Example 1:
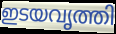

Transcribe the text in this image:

ഇടയവൃത്തി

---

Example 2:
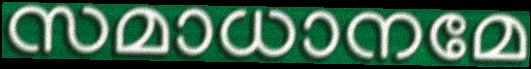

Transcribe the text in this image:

സമാധാനമേ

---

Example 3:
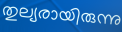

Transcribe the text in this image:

തുല്യരായിരുന്നു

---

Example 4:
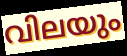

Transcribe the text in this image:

വിലയും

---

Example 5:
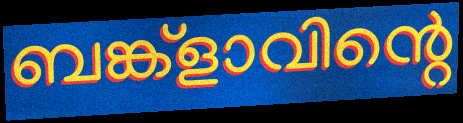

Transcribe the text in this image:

ബങ്ക്ളാവിന്റെ